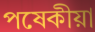
পষেকীয়া